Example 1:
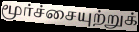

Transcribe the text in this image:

மூர்ச்சையுற்றுக்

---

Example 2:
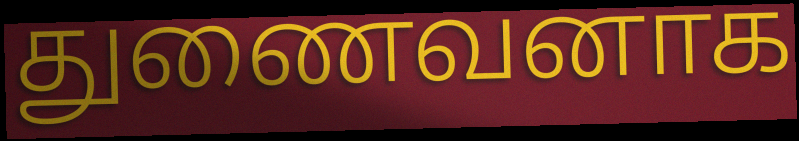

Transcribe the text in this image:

துணைவனாக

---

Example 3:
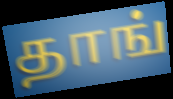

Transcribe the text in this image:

தாங்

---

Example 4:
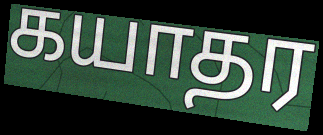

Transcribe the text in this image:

கயாதர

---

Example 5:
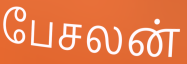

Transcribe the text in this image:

பேசலன்